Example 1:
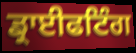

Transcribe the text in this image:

ਡ੍ਰਾਈਫਟਿੰਗ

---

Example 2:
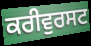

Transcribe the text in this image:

ਕਰੀਵੁਰਸਟ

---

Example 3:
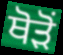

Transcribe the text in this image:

ਥੋੜੋਂ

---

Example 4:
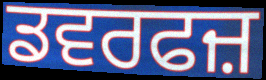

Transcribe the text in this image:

ਡਵਰਫਜ਼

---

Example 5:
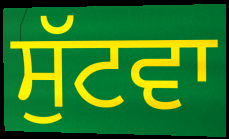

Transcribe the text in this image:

ਸੁੱਟਵਾ